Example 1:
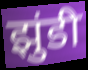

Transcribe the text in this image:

झुंडी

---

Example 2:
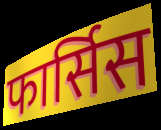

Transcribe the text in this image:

फार्सिस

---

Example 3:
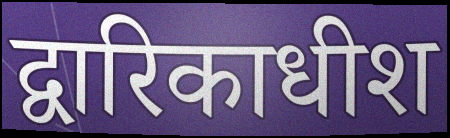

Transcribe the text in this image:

द्वारिकाधीश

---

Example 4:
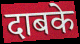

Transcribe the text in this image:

दाबके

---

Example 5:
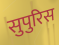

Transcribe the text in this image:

सुपुरिस